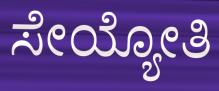
ಸೇಯ್ಯೋತಿ